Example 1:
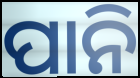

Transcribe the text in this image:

ପାନି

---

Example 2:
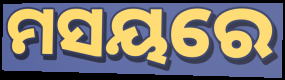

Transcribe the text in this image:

ମସୟରେ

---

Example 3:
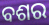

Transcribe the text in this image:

ବଶର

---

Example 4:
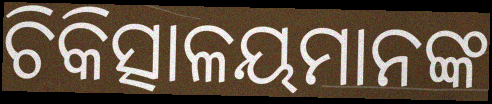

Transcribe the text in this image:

ଚିକିତ୍ସାଳୟମାନଙ୍କ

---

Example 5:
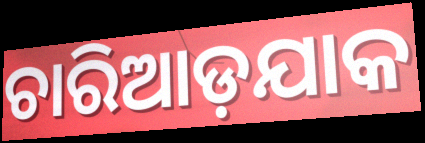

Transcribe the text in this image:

ଚାରିଆଡ଼ଯାକ